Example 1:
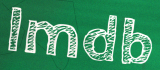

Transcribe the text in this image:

Imdb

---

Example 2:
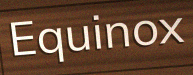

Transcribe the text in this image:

Equinox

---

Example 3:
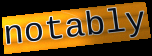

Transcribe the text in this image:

notably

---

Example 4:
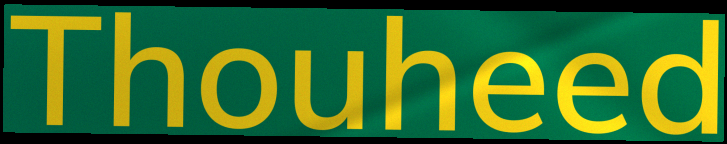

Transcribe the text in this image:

Thouheed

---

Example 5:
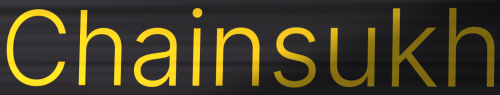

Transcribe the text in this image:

Chainsukh